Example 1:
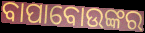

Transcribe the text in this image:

ବାପାବୋଉଙ୍କର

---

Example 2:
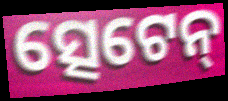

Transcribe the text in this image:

ତ୍ସେଟେନ୍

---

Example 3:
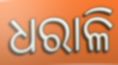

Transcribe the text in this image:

ଧରାଳି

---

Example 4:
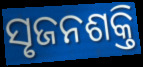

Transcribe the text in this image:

ସୃଜନଶକ୍ତି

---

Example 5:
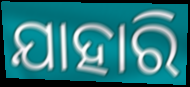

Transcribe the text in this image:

ଯାହାରି